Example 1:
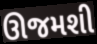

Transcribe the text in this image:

ઊજમશી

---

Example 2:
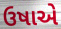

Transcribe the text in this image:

ઉષાએ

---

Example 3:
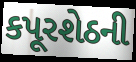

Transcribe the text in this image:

કપૂરશેઠની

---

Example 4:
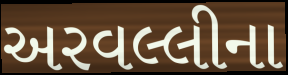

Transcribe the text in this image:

અરવલ્લીના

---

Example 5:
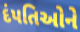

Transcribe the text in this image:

દંપતિઓને